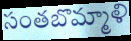
సంతబొమ్మాళి